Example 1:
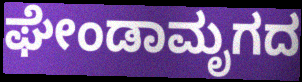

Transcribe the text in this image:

ಘೇಂಡಾಮೃಗದ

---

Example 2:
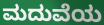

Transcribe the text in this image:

ಮದುವೆಯ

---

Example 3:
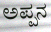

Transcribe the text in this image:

ಅಪ್ಪನ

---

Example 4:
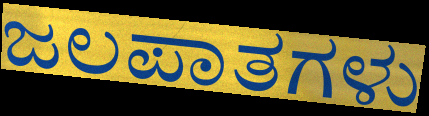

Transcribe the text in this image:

ಜಲಪಾತಗಳು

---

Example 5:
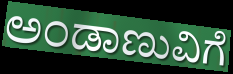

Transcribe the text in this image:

ಅಂಡಾಣುವಿಗೆ